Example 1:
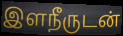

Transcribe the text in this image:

இளநீருடன்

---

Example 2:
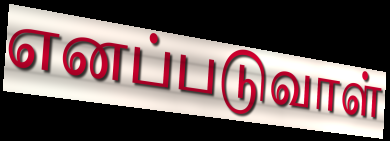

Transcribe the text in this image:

எனப்படுவாள்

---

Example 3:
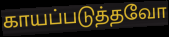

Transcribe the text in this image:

காயப்படுத்தவோ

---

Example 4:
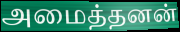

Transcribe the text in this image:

அமைத்தனன்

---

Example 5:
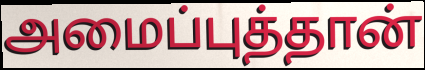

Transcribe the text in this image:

அமைப்புத்தான்